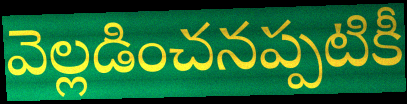
వెల్లడించనప్పటికీ